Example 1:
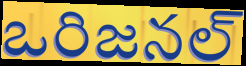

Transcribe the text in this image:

ఒరిజనల్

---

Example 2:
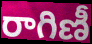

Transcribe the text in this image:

రాగిణీ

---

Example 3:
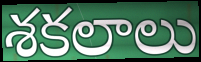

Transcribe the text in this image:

శకలాలు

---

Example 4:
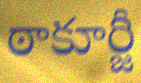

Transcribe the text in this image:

ఠాకూర్జీ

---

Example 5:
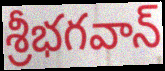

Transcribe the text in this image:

శ్రీభగవాన్